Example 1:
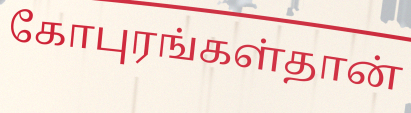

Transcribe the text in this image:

கோபுரங்கள்தான்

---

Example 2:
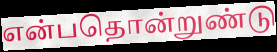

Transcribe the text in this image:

என்பதொன்றுண்டு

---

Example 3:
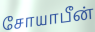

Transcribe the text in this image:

சோயாபீன்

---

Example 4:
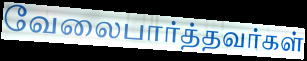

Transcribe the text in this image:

வேலைபார்த்தவர்கள்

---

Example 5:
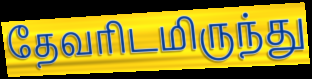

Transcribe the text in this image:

தேவரிடமிருந்து